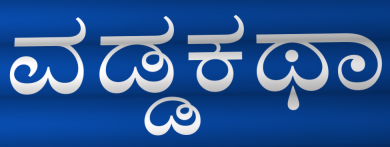
ವಡ್ಡಕಥಾ